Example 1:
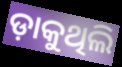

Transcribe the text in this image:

ଡ଼ାକୁଥିଲି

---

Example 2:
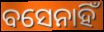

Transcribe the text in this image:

ବସେନାହିଁ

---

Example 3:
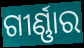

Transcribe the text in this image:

ଗୀର୍ଣ୍ଣାର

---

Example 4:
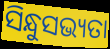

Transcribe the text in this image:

ସିନ୍ଧୁସଭ୍ୟତା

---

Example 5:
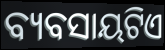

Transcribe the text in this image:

ବ୍ୟବସାୟଟିଏ